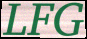
LFG